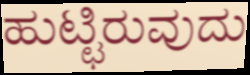
ಹುಟ್ಟಿರುವುದು